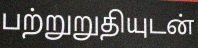
பற்றுறுதியுடன்